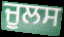
ਜੂਲਸ